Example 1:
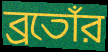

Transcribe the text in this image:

ব্রতোঁর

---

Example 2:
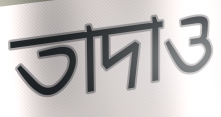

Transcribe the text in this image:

তাদাও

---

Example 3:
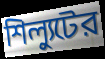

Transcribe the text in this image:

শিল্যুটের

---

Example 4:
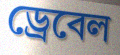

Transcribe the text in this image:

ড্রেবেল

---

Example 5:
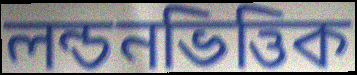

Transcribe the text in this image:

লন্ডনভিত্তিক